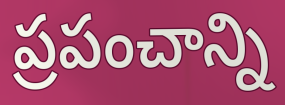
ప్రపంచాన్ని